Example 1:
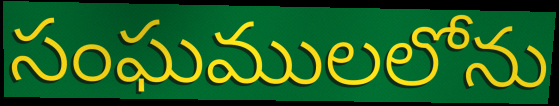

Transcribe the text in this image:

సంఘములలోను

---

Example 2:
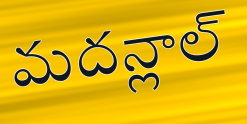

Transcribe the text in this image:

మదన్లాల్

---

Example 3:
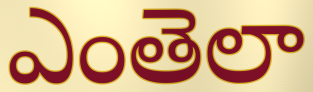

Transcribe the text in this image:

ఎంతెలా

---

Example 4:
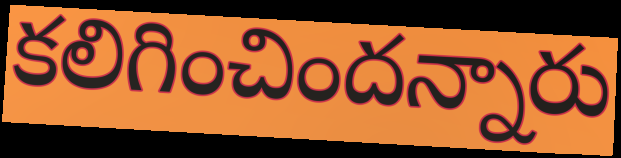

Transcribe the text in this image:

కలిగించిందన్నారు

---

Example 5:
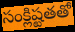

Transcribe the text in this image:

సంక్లిష్టతతో